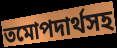
তমোপদার্থসহ